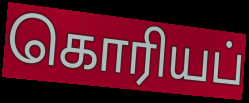
கொரியப்